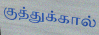
குத்துக்கால்